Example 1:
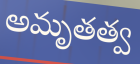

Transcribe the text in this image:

అమృతత్వ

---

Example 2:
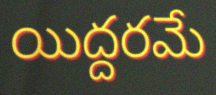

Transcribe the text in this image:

యిద్దరమే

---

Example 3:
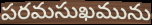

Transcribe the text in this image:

పరమసుఖమును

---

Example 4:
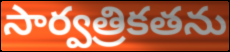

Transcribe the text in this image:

సార్వత్రికతను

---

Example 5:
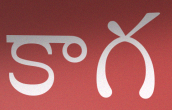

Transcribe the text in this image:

కాగ